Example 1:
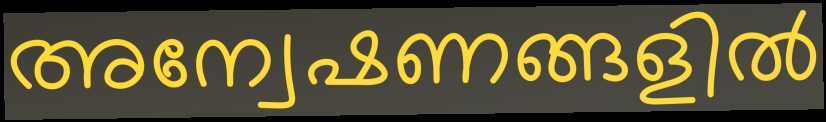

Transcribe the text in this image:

അന്വേഷണങ്ങളിൽ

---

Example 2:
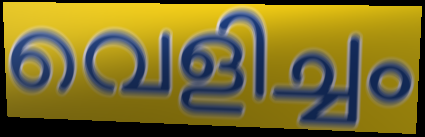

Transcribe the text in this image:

വെളിച്ചം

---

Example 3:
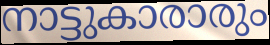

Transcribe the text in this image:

നാട്ടുകാരാരും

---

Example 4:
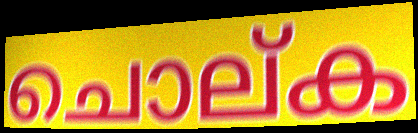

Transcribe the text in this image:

ചൊല്ക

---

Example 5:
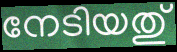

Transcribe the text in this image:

നേടിയതു്